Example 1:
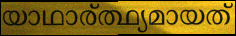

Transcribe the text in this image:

യാഥാര്ത്ഥ്യമായത്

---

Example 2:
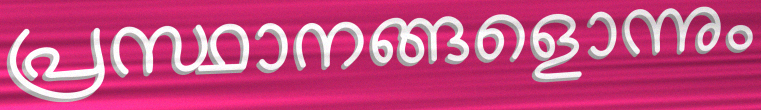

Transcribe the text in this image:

പ്രസ്ഥാനങ്ങളൊന്നും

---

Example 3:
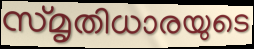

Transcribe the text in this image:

സ്മൃതിധാരയുടെ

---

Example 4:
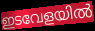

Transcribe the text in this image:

ഇടവേളയിൽ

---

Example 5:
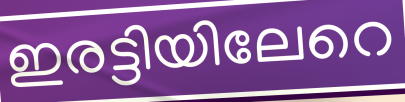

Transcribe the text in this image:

ഇരട്ടിയിലേറെ